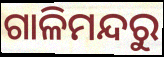
ଗାଳିମନ୍ଦରୁ